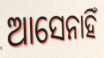
ଆସେନାହିଁ